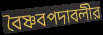
বৈষ্ণবপদাবলীর